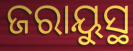
ଜରାୟୁସ୍ଥ